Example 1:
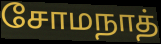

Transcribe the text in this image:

சோமநாத்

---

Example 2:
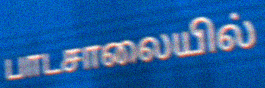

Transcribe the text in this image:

பாடசாலையில்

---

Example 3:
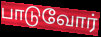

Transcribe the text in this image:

பாடுவோர்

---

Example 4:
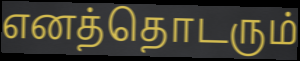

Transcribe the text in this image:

எனத்தொடரும்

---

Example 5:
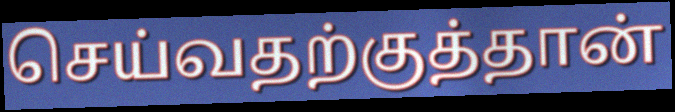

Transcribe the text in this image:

செய்வதற்குத்தான்